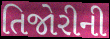
તિજોરીની